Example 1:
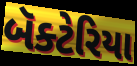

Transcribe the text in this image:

બૅક્ટેરિયા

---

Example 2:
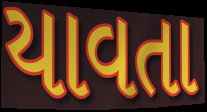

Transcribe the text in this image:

યાવતા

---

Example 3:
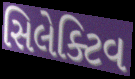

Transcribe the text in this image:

સિલેક્ટિવ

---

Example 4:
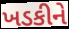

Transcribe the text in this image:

ખડકીને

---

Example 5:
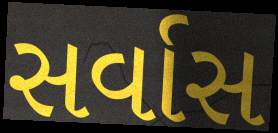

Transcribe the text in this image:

સર્વાસ